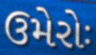
ઉમેરોઃ